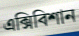
এক্সিবিশান